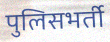
पुलिसभर्ती